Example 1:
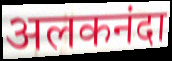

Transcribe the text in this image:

अलकनंदा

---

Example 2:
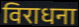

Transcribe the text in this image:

विराधना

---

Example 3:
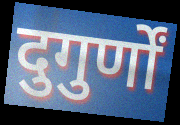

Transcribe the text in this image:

दुगुर्णों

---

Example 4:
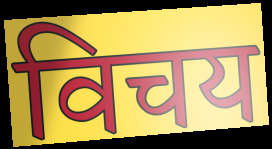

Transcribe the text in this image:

विचय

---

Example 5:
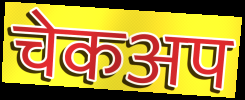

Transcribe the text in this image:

चेकअप